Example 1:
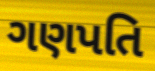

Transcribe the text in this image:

ગણપતિ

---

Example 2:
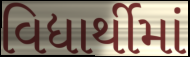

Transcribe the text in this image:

વિદ્યાર્થીમાં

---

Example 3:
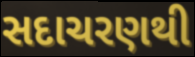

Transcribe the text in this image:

સદાચરણથી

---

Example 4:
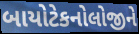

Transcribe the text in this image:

બાયોટેકનોલોજીને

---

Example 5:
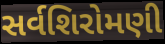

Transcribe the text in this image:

સર્વશિરોમણી